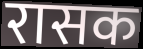
रासक